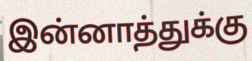
இன்னாத்துக்கு